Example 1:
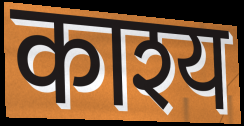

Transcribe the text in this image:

काश्य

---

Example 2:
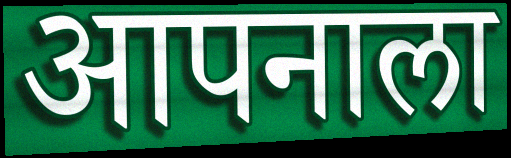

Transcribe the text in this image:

आपनाला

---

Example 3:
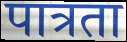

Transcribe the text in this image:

पात्रता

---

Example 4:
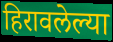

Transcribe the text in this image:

हिरावलेल्या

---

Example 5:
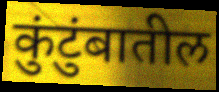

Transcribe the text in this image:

कुंटुंबातील